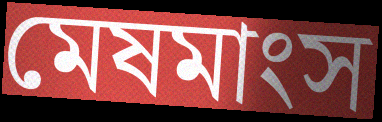
মেষমাংস